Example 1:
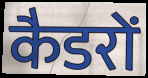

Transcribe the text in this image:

कैडरों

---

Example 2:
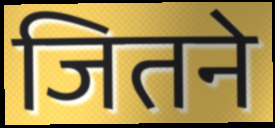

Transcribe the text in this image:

जितने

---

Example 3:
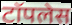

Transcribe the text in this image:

टॉपलेस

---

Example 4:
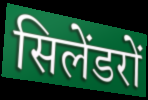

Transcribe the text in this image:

सिलेंडरों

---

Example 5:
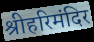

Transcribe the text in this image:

श्रीहरिमंदिर